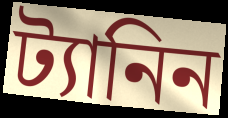
ট্যানিন